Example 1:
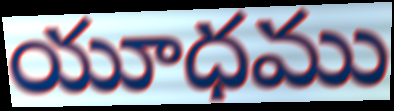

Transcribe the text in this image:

యూధము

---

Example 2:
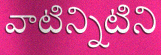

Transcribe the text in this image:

వాటిన్నిటిని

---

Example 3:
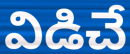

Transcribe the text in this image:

విడిచే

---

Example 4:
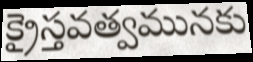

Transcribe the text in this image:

క్రైస్తవత్వమునకు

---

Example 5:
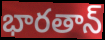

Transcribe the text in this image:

భారతాన్